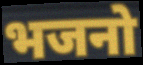
भजनो